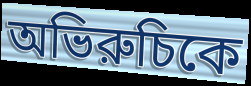
অভিরুচিকে